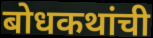
बोधकथांची